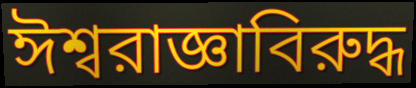
ঈশ্বরাজ্ঞাবিরুদ্ধ